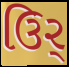
ઉિર્